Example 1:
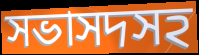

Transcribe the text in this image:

সভাসদসহ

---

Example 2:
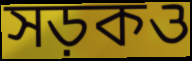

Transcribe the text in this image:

সড়কও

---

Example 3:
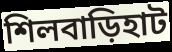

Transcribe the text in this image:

শিলবাড়িহাট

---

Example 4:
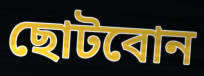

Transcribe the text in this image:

ছোটবোন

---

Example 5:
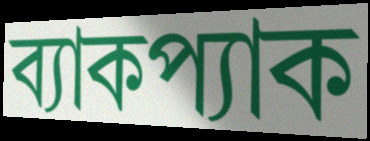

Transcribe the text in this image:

ব্যাকপ্যাক